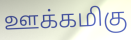
ஊக்கமிகு